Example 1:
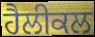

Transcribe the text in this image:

ਹੈਲੀਕਲ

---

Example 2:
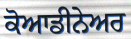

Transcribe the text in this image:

ਕੋਆਡੀਨੇਅਰ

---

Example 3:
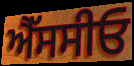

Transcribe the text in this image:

ਐੱਸਸੀਓ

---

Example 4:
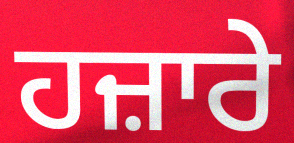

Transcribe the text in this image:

ਹਜ਼ਾਰੇ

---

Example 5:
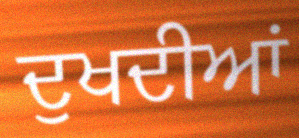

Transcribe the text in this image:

ਦੁਖਦੀਆਂ